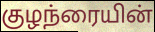
குழந்ரையின்